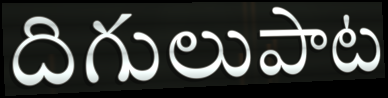
దిగులుపాట